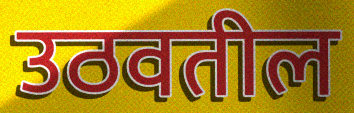
उठवतील